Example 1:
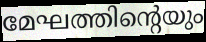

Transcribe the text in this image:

മേഘത്തിന്റെയും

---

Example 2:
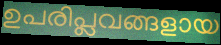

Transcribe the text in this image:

ഉപരിപ്ലവങ്ങളായ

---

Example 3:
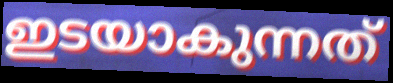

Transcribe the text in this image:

ഇടയാകുന്നത്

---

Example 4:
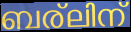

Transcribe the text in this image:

ബര്ലിന്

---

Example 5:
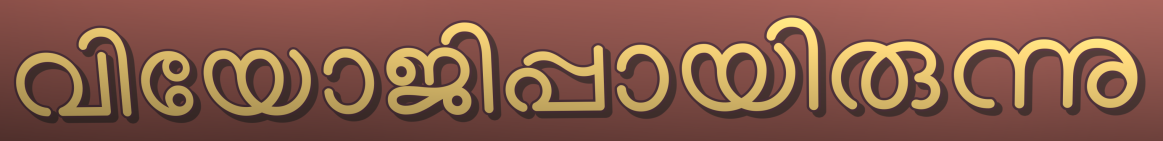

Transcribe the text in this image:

വിയോജിപ്പായിരുന്നു